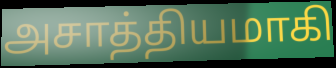
அசாத்தியமாகி